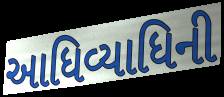
આધિવ્યાધિની